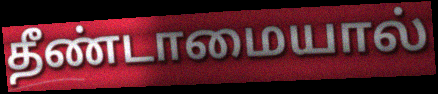
தீண்டாமையால்